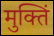
मुक्तिं